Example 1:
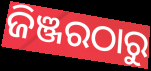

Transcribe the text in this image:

ଜିଞ୍ଜରଠାରୁ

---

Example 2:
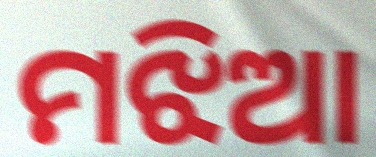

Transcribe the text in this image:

ମଝିଆ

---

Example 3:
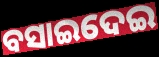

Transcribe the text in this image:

ବସାଇଦେଇ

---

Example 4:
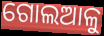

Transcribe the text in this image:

ଗୋଲଆଳୁ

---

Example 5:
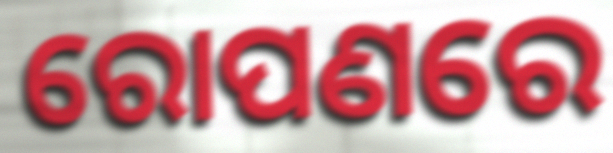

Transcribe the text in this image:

ରୋପଣରେ